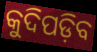
କୁଦିପଡ଼ିବ